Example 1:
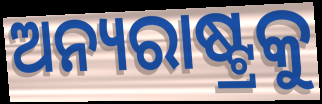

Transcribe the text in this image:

ଅନ୍ୟରାଷ୍ଟ୍ରକୁ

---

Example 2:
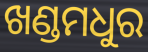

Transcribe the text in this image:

ଖଣ୍ଡମଧୁର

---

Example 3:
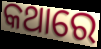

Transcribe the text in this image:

କଥାରେ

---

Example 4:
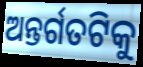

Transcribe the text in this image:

ଅନ୍ତର୍ଗତଟିକୁ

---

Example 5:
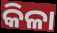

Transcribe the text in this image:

କିଳା